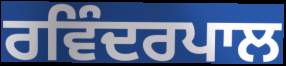
ਰਵਿੰਦਰਪਾਲ